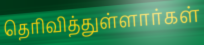
தெரிவித்துள்ளார்கள்